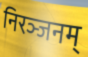
निरञ्जनम्